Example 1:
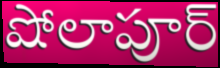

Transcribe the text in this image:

షోలాపూర్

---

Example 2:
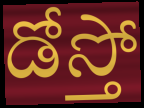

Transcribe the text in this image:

డోస్తో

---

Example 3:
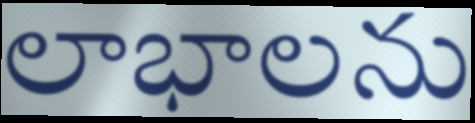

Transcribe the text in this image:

లాభాలను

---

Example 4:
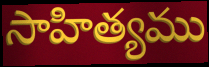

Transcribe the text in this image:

సాహిత్యము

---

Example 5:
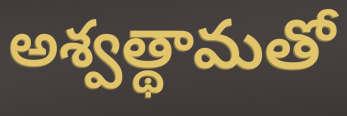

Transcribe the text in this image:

అశ్వత్థామతో